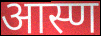
आस्ण